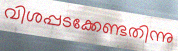
വിശപ്പടക്കേണ്ടതിന്നു